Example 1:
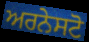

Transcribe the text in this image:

ਅਰਨੇਸਟੋ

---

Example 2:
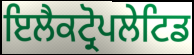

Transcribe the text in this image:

ਇਲੈਕਟ੍ਰੋਪਲੇਟਿਡ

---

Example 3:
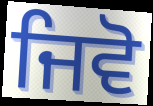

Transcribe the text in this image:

ਜਿਵੋ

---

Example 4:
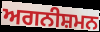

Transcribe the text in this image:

ਅਗਨੀਸ਼ਮਨ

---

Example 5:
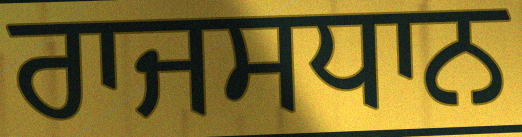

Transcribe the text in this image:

ਰਾਜਸਧਾਨ